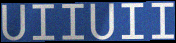
UIIUII